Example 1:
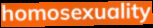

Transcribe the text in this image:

homosexuality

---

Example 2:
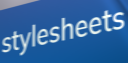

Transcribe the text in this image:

stylesheets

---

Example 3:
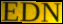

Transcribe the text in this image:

EDN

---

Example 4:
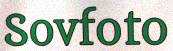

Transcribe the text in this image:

Sovfoto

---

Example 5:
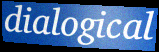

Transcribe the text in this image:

dialogical